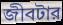
জীবটার